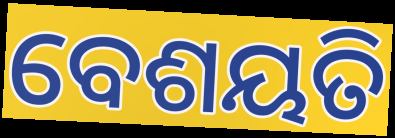
ବେଶୟତି